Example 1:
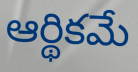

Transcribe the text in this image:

ఆర్థికమే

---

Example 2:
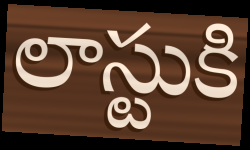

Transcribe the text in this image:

లాస్టుకి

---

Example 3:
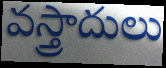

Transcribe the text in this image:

వస్త్రాదులు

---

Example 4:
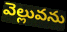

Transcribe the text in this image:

వెల్లువను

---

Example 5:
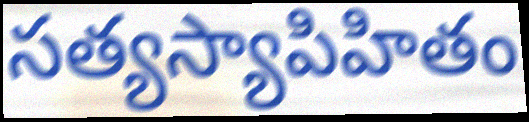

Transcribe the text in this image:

సత్యస్యాపిహితం